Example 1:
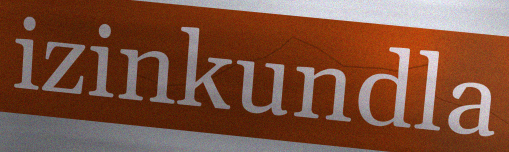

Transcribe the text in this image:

izinkundla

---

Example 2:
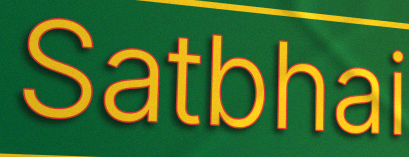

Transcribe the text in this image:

Satbhai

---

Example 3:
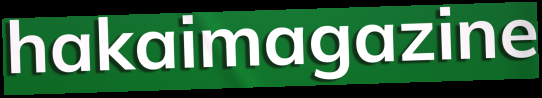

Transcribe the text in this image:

hakaimagazine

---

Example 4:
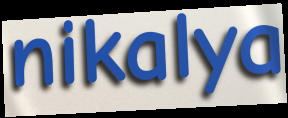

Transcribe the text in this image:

nikalya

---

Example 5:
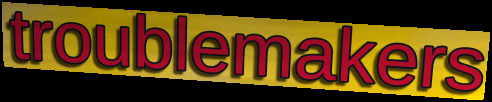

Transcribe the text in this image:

troublemakers